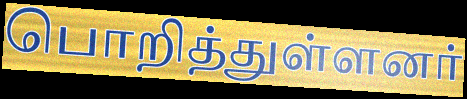
பொறித்துள்ளனர்